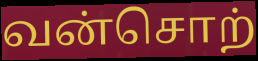
வன்சொற்